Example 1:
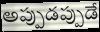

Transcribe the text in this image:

అప్పుడప్పుడే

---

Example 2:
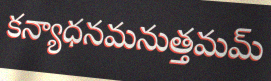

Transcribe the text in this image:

కన్యాధనమనుత్తమమ్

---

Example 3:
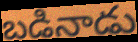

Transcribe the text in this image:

బడినాడు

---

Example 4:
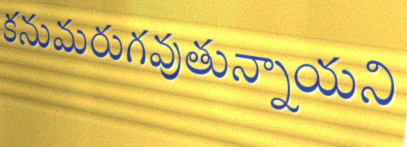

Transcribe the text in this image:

కనుమరుగవుతున్నాయని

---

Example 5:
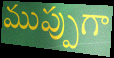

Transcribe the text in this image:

ముప్పుగా